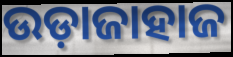
ଉଡ଼ାଜାହାଜ